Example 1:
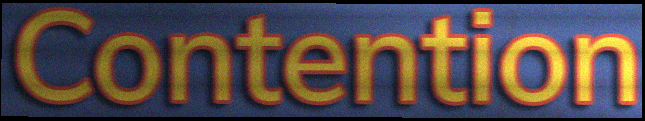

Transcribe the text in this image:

Contention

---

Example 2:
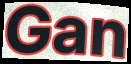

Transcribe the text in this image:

Gan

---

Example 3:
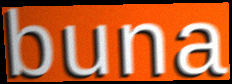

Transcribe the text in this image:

buna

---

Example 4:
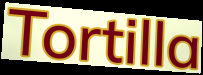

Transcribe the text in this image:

Tortilla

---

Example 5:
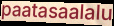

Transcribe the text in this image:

paatasaalalu